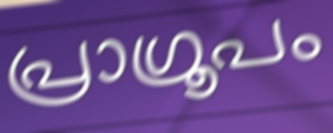
പ്രാഗ്രൂപം